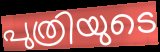
പുത്രിയുടെ